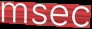
msec